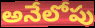
అనేలోపు